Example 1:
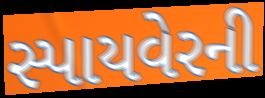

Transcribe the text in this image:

સ્પાયવેરની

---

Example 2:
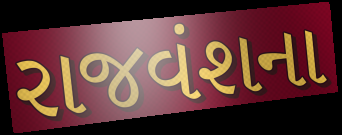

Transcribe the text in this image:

રાજવંશના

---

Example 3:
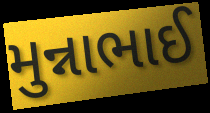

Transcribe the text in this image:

મુન્નાભાઈ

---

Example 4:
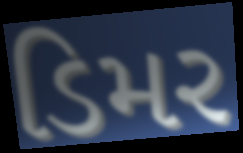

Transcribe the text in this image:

ડિમર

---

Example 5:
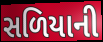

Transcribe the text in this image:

સળિયાની